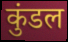
कुंडल